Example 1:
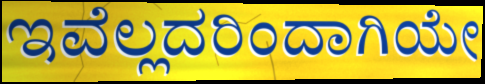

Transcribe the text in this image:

ಇವೆಲ್ಲದರಿಂದಾಗಿಯೇ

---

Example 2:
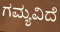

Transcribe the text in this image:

ಗಮ್ಯವಿದೆ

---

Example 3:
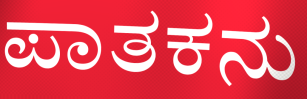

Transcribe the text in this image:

ಪಾತಕನು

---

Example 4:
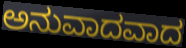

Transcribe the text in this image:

ಅನುವಾದವಾದ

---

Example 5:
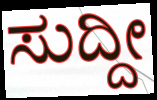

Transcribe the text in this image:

ಸುದ್ದೀ